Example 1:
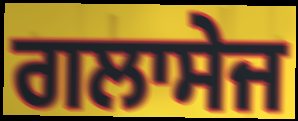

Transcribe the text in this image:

ਗਲਾਸੇਜ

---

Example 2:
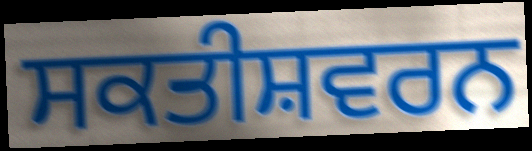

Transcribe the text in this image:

ਸਕਤੀਸ਼ਵਰਨ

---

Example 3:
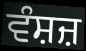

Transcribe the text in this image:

ਵੰਸ਼ਜ਼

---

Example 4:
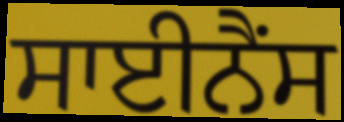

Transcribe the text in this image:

ਸਾਈਨੈਂਸ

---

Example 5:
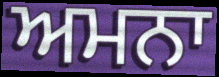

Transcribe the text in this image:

ਅਮਨਾ